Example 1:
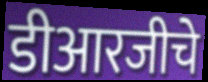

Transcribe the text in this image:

डीआरजीचे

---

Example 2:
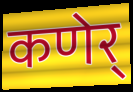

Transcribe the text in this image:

कणेर्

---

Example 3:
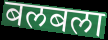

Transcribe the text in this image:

बलबला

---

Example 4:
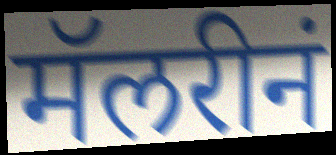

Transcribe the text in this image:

मॅलरीनं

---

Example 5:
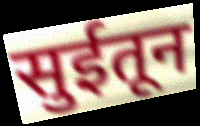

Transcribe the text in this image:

सुईतून